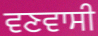
ਵਣਵਾਸੀ